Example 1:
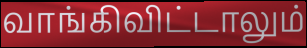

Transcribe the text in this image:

வாங்கிவிட்டாலும்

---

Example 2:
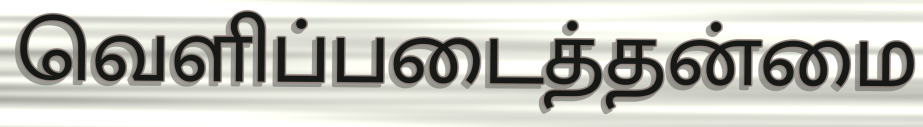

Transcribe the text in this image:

வெளிப்படைத்தன்மை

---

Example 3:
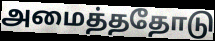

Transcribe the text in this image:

அமைத்ததோடு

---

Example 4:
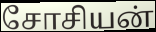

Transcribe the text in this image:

சோசியன்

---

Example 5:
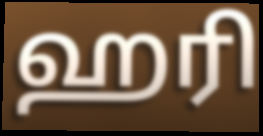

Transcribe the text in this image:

ஹரி